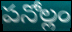
పనోల్లం